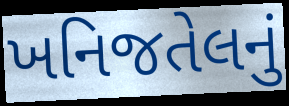
ખનિજતેલનું